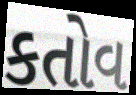
કતોવ